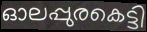
ഓലപ്പുരകെട്ടി